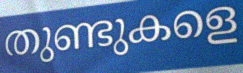
തുണ്ടുകളെ